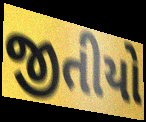
જીતીયો